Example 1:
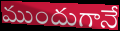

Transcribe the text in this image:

ముందుగానే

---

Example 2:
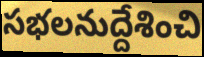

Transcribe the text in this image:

సభలనుద్దేశించి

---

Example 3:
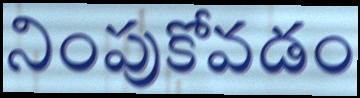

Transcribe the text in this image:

నింపుకోవడం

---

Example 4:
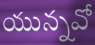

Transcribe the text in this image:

యున్నవో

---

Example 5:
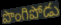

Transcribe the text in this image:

పొంగిపోడు